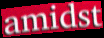
amidst